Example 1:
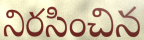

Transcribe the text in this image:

నిరసించిన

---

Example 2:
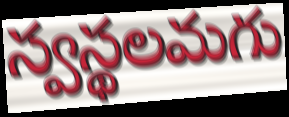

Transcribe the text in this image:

స్వస్థలమగు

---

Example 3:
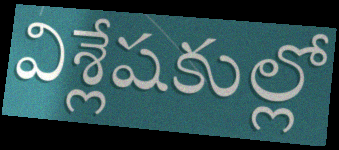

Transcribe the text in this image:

విశ్లేషకుల్లో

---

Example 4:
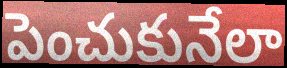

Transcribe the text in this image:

పెంచుకునేలా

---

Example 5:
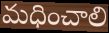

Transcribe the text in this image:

మధించాలి